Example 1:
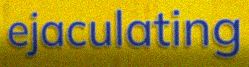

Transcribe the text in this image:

ejaculating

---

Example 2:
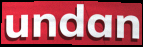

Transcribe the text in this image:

undan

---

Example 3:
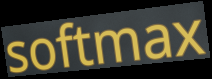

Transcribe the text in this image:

softmax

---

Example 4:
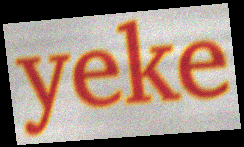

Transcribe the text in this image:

yeke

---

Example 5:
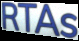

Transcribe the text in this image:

RTAs